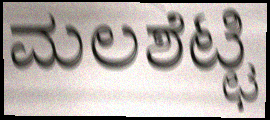
ಮಲಶೆಟ್ಟಿ